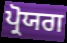
ਪ੍ਰੋਯਗ